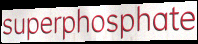
superphosphate